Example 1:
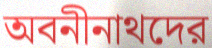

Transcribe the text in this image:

অবনীনাথদের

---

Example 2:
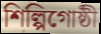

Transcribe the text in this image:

শিল্পিগোষ্ঠী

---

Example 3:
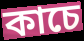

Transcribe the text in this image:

কাচে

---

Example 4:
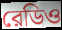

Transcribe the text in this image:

রেডিও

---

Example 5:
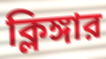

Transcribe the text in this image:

ক্লিঙ্গার